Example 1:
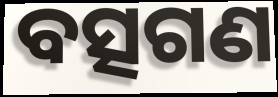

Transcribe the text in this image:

ବତ୍ସଗଣ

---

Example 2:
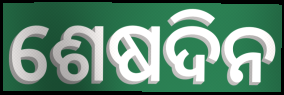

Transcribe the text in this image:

ଶେଷଦିନ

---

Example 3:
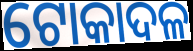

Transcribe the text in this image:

ଟୋକାଦଳ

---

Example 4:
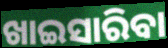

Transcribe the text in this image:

ଖାଇସାରିବା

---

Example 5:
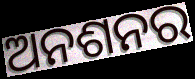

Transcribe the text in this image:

ଅନଶନର